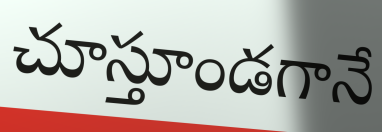
చూస్తూండగానే